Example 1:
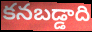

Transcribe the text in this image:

కనబడ్డాది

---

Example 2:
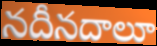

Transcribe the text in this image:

నదీనదాలూ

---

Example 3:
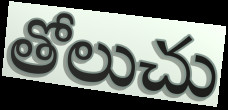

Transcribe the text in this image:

తోలుచు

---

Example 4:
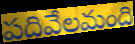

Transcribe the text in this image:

పదివేలమంది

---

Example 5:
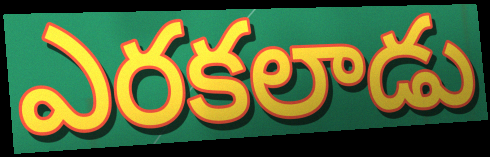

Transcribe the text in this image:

ఎరకలాడు